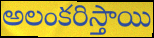
అలంకరిస్తాయి